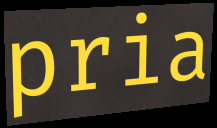
pria